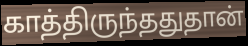
காத்திருந்ததுதான்